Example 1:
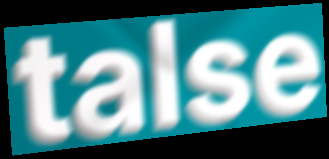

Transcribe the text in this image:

talse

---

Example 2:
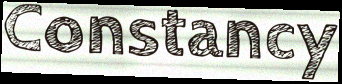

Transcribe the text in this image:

Constancy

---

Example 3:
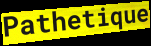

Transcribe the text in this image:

Pathetique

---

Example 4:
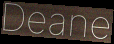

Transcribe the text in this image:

Deane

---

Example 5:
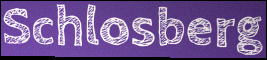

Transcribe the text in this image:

Schlosberg